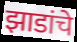
झाडांचे